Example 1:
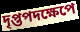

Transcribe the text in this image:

দৃপ্তপদক্ষেপে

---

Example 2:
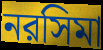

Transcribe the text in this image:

নরসিমা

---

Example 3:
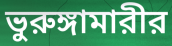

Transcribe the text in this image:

ভুরুঙ্গামারীর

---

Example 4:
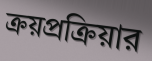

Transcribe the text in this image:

ক্রয়প্রক্রিয়ার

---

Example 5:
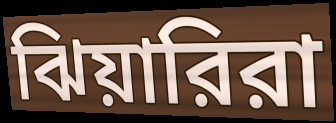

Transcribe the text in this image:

ঝিয়ারিরা